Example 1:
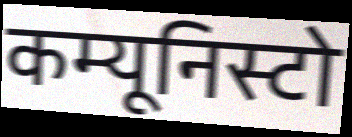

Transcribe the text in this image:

कम्यूनिस्टो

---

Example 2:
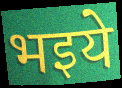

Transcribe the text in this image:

भइये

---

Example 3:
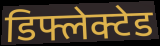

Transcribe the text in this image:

डिफ्लेक्टेड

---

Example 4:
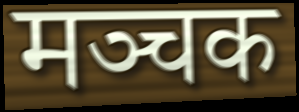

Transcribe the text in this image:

मञ्चक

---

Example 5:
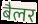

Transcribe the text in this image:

बैलर